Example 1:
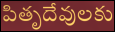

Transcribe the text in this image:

పితృదేవులకు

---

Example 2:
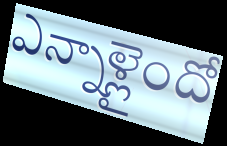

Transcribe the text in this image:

ఎన్నాళ్లైందో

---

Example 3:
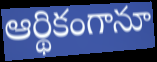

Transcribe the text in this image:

ఆర్థికంగానూ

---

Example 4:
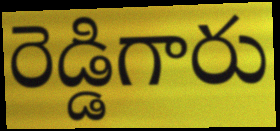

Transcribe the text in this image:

రెడ్డిగారు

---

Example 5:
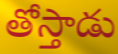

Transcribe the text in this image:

తోస్తాడు